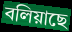
বলিয়াছে